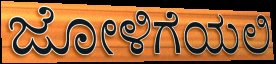
ಜೋಳಿಗೆಯಲಿ